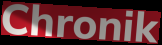
Chronik